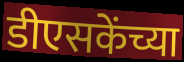
डीएसकेंच्या